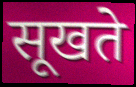
सूखते